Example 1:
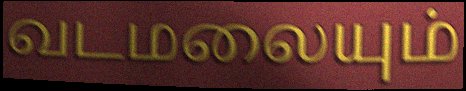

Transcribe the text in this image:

வடமலையும்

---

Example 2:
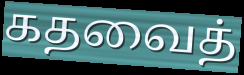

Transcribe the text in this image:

கதவைத்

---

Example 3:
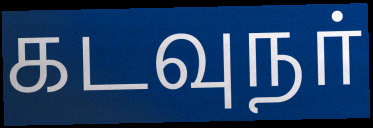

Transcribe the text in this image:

கடவுநர்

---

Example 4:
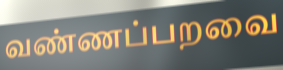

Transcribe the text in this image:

வண்ணப்பறவை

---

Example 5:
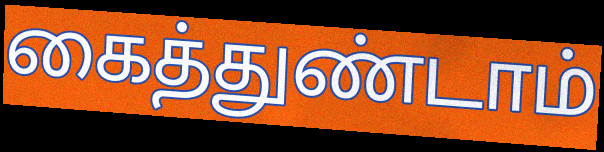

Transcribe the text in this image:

கைத்துண்டாம்